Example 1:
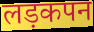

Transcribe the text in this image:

लड़कपन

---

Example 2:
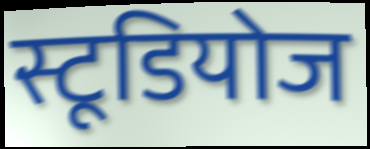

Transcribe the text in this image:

स्टूडियोज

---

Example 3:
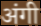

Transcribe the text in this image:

अंगी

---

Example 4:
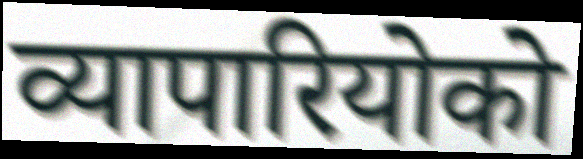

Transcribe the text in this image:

व्यापारियोको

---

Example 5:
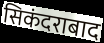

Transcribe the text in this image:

सिकंदराबाद